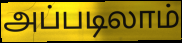
அப்படிலாம்